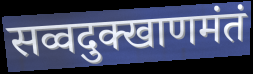
सव्वदुक्खाणमंतं